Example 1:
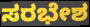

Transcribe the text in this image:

ಸರಭೇಶ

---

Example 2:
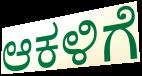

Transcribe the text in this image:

ಆಕಳಿಗೆ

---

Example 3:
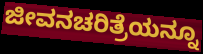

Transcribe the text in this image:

ಜೀವನಚರಿತ್ರೆಯನ್ನೂ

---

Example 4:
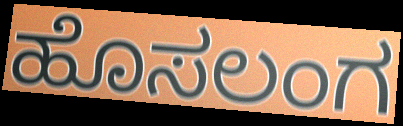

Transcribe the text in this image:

ಹೊಸಲಂಗ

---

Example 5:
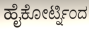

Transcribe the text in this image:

ಹೈಕೋರ್ಟ್ನಿಂದ